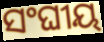
ସଂଘୀୟ